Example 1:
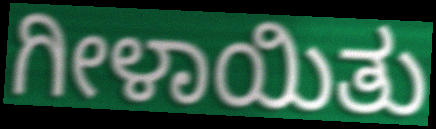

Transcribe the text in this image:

ಗೀಳಾಯಿತು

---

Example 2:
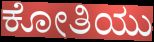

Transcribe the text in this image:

ಕೋತಿಯು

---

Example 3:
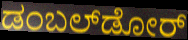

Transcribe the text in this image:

ಡಂಬಲ್‌ಡೋರ್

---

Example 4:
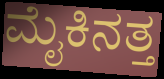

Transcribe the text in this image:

ಮೈಕಿನತ್ತ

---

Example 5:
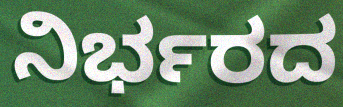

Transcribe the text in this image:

ನಿರ್ಭರದ